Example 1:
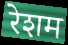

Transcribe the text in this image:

रेशम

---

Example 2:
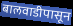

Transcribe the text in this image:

बालवाडीपासून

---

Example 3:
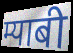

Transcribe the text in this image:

म्याबी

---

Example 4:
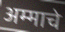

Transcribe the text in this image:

अम्माचे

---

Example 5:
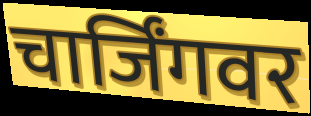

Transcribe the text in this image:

चार्जिंगवर